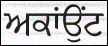
ਅਕਾਂਉਂਟ